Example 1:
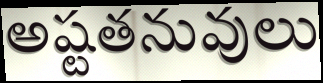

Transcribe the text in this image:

అష్టతనువులు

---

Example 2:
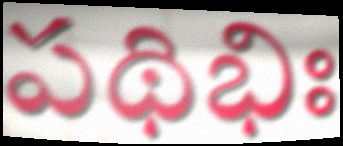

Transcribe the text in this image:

పథిభిః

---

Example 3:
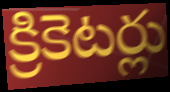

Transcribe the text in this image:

క్రికెటర్లు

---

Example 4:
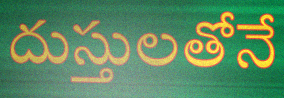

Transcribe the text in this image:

దుస్తులతోనే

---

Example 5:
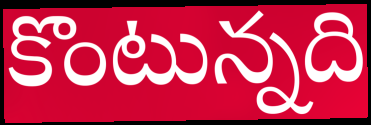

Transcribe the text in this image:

కొంటున్నది